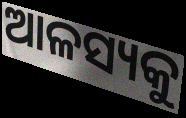
ଆଳସ୍ୟକୁ